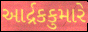
આર્દ્રકકુમારે